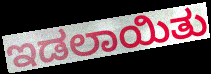
ಇಡಲಾಯಿತು